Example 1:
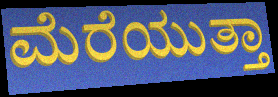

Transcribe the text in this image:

ಮೆರೆಯುತ್ತಾ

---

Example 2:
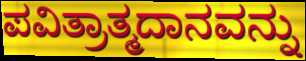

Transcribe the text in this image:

ಪವಿತ್ರಾತ್ಮದಾನವನ್ನು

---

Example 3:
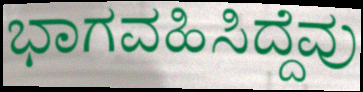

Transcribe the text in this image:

ಭಾಗವಹಿಸಿದ್ದೆವು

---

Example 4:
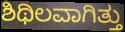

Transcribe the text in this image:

ಶಿಥಿಲವಾಗಿತ್ತು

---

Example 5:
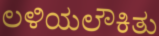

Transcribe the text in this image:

ಲಳಿಯಲೌಕಿತು